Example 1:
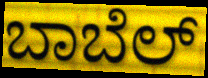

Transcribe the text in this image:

ಬಾಬೆಲ್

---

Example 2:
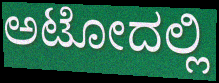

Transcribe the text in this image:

ಅಟೋದಲ್ಲಿ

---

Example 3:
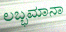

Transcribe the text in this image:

ಲಬ್ಭಮಾನಾ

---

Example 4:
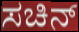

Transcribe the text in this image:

ಸಚಿನ್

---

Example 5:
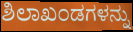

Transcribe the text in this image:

ಶಿಲಾಖಂಡಗಳನ್ನು